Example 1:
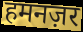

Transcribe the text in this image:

हमनज़र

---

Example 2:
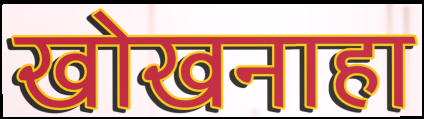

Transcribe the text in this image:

खोखनाहा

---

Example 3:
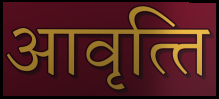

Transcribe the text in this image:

आवृत्‍ति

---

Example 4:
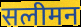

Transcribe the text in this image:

सलीमन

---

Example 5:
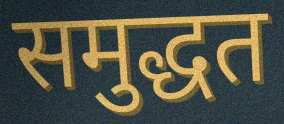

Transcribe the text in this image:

समुद्धत